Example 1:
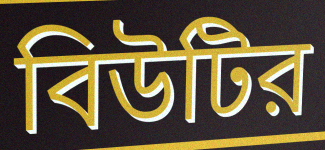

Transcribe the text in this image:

বিউটির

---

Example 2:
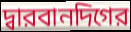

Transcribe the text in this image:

দ্বারবানদিগের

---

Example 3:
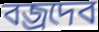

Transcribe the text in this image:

বজ্রদেব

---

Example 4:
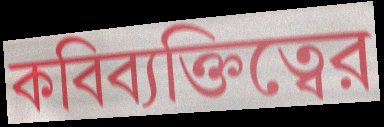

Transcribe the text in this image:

কবিব্যক্তিত্বের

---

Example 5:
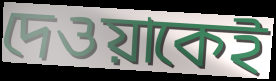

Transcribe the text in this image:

দেওয়াকেই